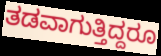
ತಡವಾಗುತ್ತಿದ್ದರೂ